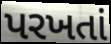
પરખતાં